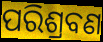
ପରିଶ୍ରବଣ